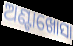
ଅଣ୍ଟାଖୋସା